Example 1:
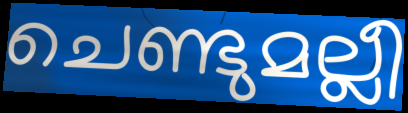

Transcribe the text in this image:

ചെണ്ടുമല്ലീ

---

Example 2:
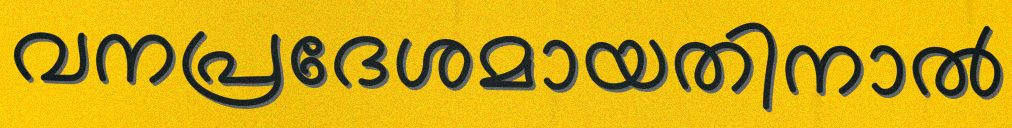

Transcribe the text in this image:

വനപ്രദേശമായതിനാൽ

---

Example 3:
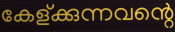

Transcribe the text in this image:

കേള്ക്കുന്നവന്റെ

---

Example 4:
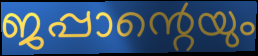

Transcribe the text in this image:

ജപ്പാന്റെയും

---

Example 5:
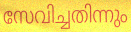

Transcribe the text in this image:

സേവിച്ചതിന്നും